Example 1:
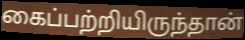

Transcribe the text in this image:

கைப்பற்றியிருந்தான்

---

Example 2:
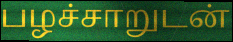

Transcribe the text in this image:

பழச்சாறுடன்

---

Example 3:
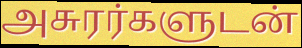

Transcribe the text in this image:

அசுரர்களுடன்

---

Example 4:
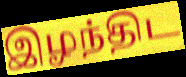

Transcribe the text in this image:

இழந்திட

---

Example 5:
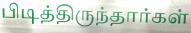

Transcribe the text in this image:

பிடித்திருந்தார்கள்